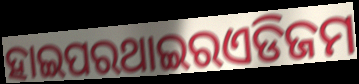
ହାଇପରଥାଇରଏଡିଜମ